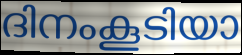
ദിനംകൂടിയാ